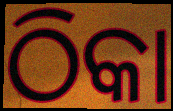
ଠିକା